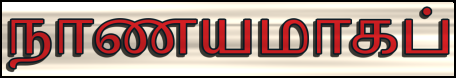
நாணயமாகப்